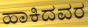
ಹಾಕಿದವರ